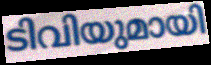
ടിവിയുമായി